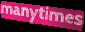
manytimes